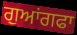
ਗੁਆਂਗਫਾ